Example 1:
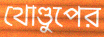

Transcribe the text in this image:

থোণ্ডুপের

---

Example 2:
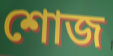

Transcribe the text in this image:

শোজ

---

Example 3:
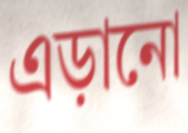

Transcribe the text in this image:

এড়ানো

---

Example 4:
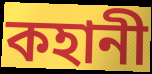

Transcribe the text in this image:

কহানী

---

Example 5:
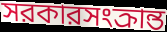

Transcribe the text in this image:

সরকারসংক্রান্ত